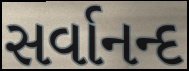
સર્વાનન્દ